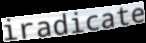
iradicate